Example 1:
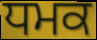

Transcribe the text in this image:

ਧਮਕ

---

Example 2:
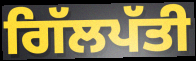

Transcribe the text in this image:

ਗਿੱਲਪੱਤੀ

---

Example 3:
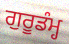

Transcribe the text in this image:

ਗੁਰੂਡੰਮ੍ਹ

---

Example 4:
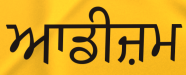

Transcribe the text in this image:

ਆਡੀਜ਼ਮ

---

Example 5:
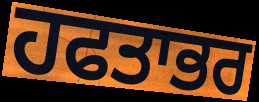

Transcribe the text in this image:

ਹਫਤਾਭਰ